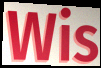
Wis